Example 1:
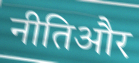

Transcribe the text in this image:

नीतिऔर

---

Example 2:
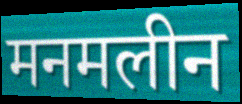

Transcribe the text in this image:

मनमलीन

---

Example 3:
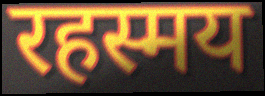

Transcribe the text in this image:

रहस्मय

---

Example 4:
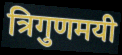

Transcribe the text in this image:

त्रिगुणमयी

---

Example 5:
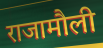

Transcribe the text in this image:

राजामौली